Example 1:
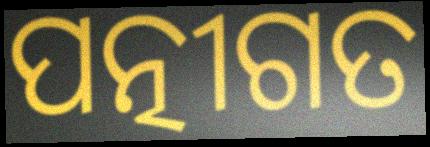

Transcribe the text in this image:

ପତ୍ନୀଗତ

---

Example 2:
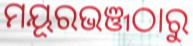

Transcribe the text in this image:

ମୟୂରଭଞ୍ଜଠାରୁ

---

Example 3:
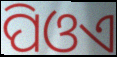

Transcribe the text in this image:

ପିଓଏ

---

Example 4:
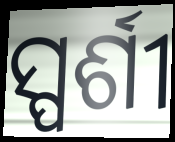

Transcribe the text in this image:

ସ୍ପର୍ଶୀ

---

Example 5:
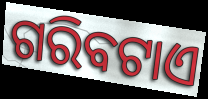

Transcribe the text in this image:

ଗରିବଟାଏ